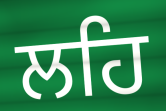
ਲਹਿ